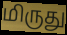
மிருது